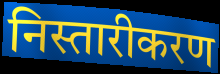
निस्तारीकरण